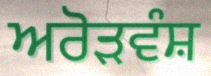
ਅਰੋੜਵੰਸ਼